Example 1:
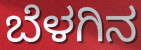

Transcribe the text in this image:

ಬೆಳಗಿನ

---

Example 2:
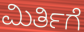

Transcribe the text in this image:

ಮಿರ್ತಿಗೆ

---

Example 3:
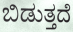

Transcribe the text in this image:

ಬಿಡುತ್ತದೆ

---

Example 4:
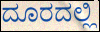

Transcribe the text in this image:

ದೂರದಲ್ಲಿ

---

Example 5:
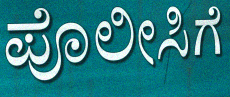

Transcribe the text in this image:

ಪೊಲೀಸಿಗೆ